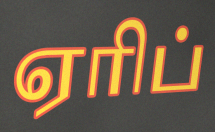
ஏரிப்